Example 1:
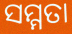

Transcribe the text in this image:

ସମ୍ମତା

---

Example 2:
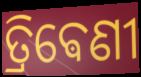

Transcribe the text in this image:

ତ୍ରିଵେଣୀ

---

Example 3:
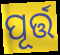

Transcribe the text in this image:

ପୂର୍ତ୍ତ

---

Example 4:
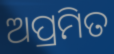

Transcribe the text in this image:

ଅପ୍ରମିତ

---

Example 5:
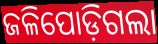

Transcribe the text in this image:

ଜଳିପୋଡ଼ିଗଲା